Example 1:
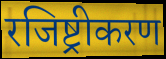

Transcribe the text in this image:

रजिष्ट्रीकरण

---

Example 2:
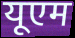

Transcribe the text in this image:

यूएम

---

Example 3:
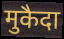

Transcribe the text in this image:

मुकैदा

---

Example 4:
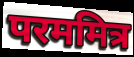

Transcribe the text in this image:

परममित्र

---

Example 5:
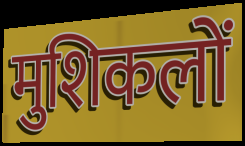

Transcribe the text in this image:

मुशिकलों